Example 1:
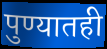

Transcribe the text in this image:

पुण्यातही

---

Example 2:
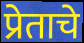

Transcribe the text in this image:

प्रेताचे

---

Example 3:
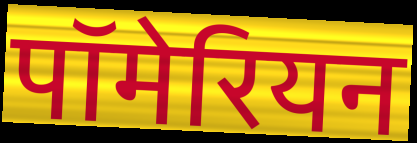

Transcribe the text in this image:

पॉमेरियन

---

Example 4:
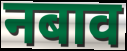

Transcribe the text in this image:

नबाव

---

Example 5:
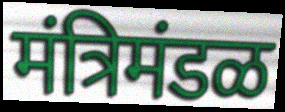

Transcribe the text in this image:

मंत्रिमंडळ